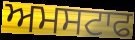
ਅਮਸਟਾਫ